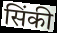
सिंकी